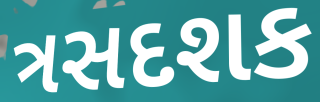
ત્રસદશક